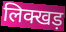
लिक्खड़